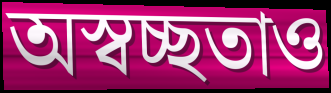
অস্বচ্ছতাও